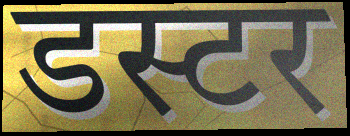
डस्टर